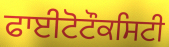
ਫਾਈਟੋਟੌਕਸਿਟੀ